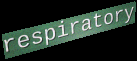
respiratory